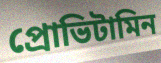
প্রোভিটামিন